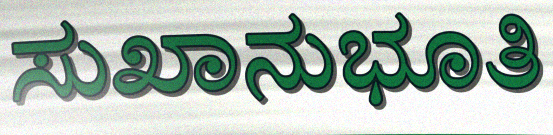
ಸುಖಾನುಭೂತಿ